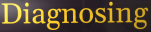
Diagnosing